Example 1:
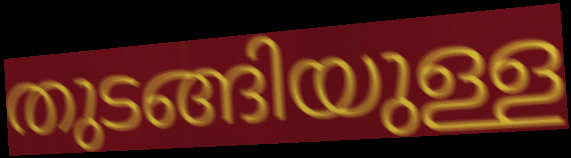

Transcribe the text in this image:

തുടങ്ങിയുള്ള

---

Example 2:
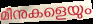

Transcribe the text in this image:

മീനുകളെയും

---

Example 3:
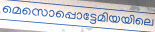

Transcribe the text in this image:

മെസൊപ്പൊട്ടേമിയയിലെ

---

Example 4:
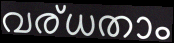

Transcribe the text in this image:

വര്ധതാം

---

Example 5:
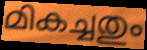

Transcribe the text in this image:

മികച്ചതും